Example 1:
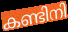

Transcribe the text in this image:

കണ്ടിനി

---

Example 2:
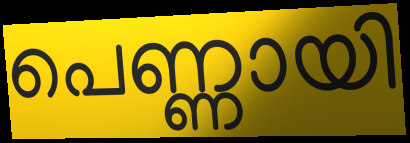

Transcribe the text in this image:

പെണ്ണായി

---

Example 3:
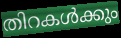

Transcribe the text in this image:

തിറകൾക്കും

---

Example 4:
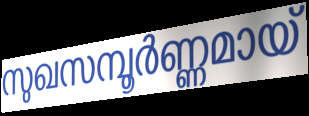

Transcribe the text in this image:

സുഖസമ്പൂർണ്ണമായ്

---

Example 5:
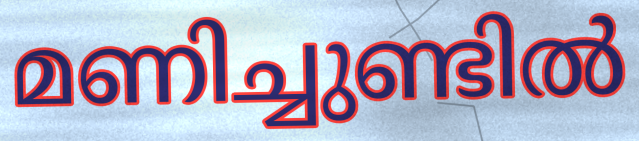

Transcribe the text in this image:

മണിച്ചുണ്ടിൽ